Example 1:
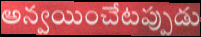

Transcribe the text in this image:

అన్వయించేటప్పుడు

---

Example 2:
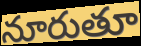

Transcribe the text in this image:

నూరుతూ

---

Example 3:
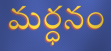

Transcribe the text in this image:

మర్ధనం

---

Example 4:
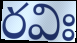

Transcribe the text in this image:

రవిః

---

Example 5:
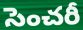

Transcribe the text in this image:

సెంచరీ